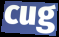
cug